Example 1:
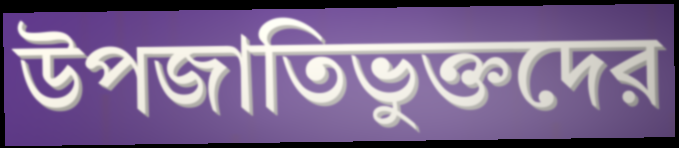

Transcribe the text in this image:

উপজাতিভুক্তদের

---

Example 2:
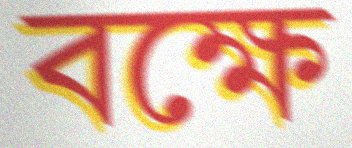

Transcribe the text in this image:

বক্ষে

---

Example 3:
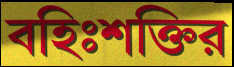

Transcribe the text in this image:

বহিঃশক্তির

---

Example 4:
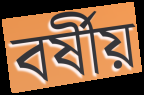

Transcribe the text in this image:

বর্ষীয়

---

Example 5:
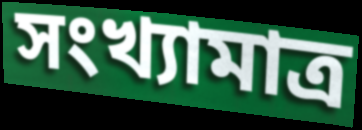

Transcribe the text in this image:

সংখ্যামাত্র